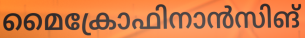
മൈക്രോഫിനാൻസിങ്